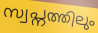
സ്വപ്നത്തിലും